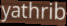
yathrib